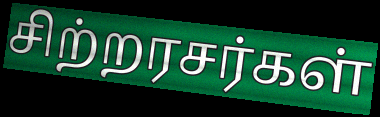
சிற்றரசர்கள்